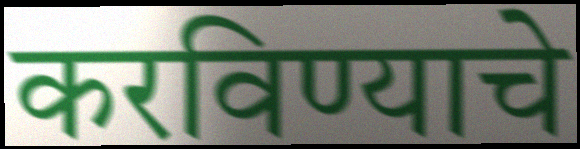
करविण्याचे